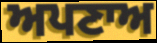
ਅਪਣਾਅ